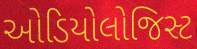
ઓડિયોલોજિસ્ટ